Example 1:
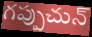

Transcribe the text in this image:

గప్పుచున్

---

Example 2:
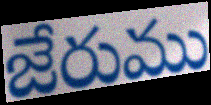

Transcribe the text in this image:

జేరుము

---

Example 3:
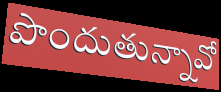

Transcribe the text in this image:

పొందుతున్నావో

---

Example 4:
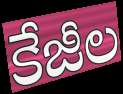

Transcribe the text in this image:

కేజీల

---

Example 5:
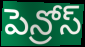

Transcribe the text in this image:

పెన్రోస్